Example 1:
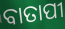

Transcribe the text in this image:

ବାତାପୀ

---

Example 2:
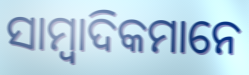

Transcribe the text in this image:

ସାମ୍ବାଦିକମାନେ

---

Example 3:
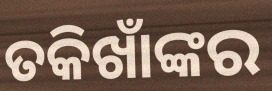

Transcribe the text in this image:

ତକିଖାଁଙ୍କର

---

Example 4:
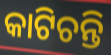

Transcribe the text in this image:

କାଟିଚନ୍ତି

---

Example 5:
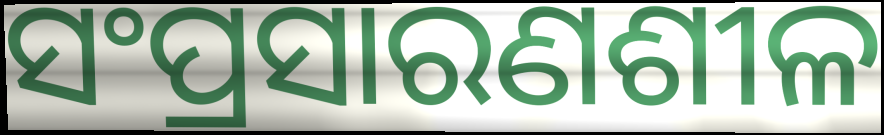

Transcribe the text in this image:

ସଂପ୍ରସାରଣଶୀଳ